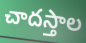
చాదస్తాల